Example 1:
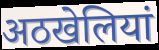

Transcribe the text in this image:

अठखेलियां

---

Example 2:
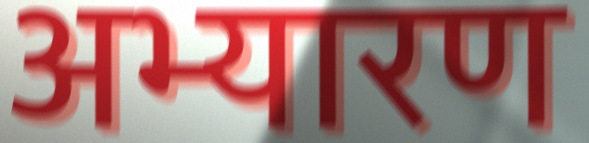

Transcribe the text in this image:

अभ्यारण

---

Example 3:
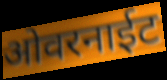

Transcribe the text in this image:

ओवरनाईट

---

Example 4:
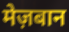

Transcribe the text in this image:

मेज़बान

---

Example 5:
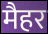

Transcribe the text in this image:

मैहर